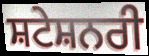
ਸ਼ਟੇਸ਼ਨਰੀ